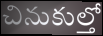
చినుకుల్తో